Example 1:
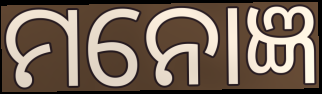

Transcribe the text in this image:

ମନୋଜ୍ଞ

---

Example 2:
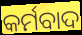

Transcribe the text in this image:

କର୍ମବାଦ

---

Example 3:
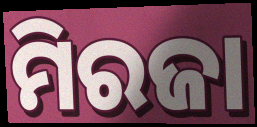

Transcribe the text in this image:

ମିରଜା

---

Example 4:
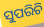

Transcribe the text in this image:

ସୁପରିଚି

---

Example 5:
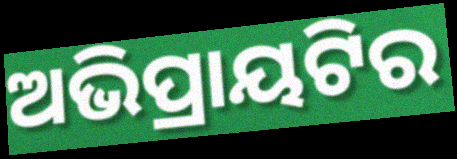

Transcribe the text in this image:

ଅଭିପ୍ରାୟଟିର